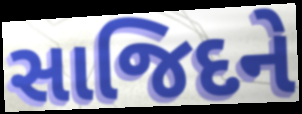
સાજિદને